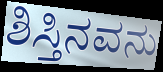
ಶಿಸ್ತಿನವನು